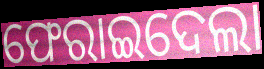
ଫେରାଇଦେଲା